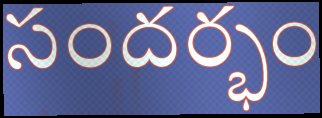
సందర్భం